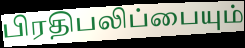
பிரதிபலிப்பையும்